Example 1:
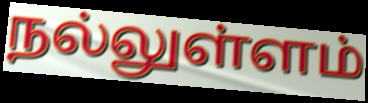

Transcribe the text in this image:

நல்லுள்ளம்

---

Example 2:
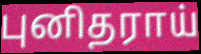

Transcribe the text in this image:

புனிதராய்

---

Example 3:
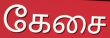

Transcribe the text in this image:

கேசை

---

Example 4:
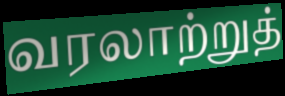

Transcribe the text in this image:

வரலாற்றுத்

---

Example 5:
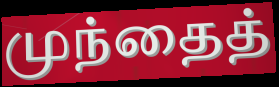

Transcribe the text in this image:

முந்தைத்